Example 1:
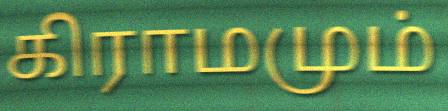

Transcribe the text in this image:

கிராமமும்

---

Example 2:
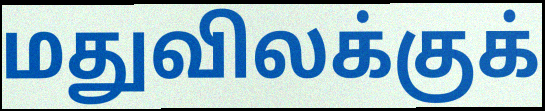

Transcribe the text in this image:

மதுவிலக்குக்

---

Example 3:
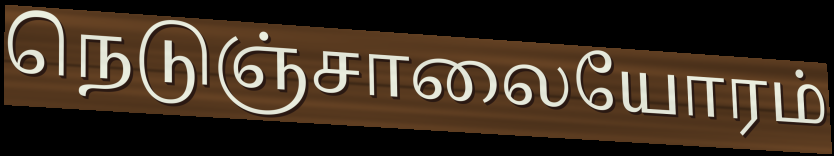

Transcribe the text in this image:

நெடுஞ்சாலையோரம்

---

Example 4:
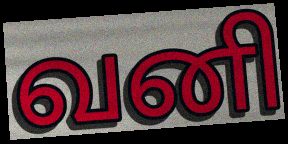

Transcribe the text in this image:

வனி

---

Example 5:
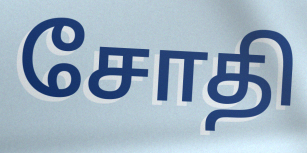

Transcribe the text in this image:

சோதி